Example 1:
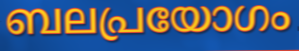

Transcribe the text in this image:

ബലപ്രയോഗം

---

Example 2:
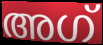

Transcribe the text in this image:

അഗ്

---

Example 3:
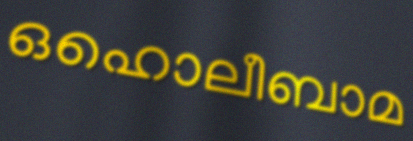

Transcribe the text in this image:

ഒഹൊലീബാമ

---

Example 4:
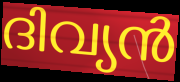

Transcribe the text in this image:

ദിവ്യൻ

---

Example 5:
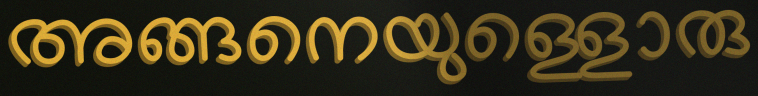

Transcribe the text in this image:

അങ്ങനെയുള്ളൊരു